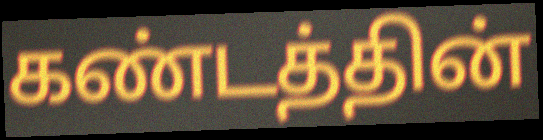
கண்டத்தின்